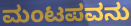
ಮಂಟಪವನು